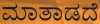
ಮಾತಾಡದೆ